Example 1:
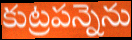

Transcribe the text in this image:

కుట్రపన్నెను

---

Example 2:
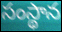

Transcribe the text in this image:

సంస్థాన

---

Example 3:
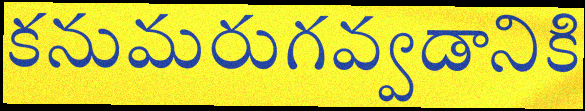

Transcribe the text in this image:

కనుమరుగవ్వడానికి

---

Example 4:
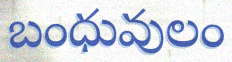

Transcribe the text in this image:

బంధువులం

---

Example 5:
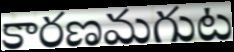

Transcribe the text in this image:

కారణమగుట